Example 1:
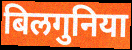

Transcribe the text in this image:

बिलगुनिया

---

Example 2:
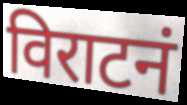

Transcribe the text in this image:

विराटनं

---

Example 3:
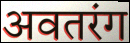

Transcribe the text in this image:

अवतरंग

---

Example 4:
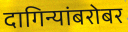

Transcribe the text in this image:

दागिन्यांबरोबर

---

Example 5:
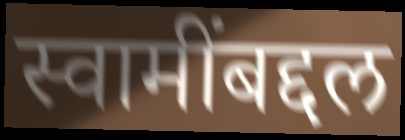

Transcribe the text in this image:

स्वामींबद्दल